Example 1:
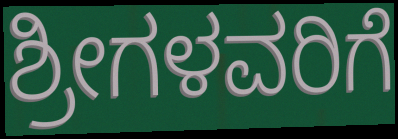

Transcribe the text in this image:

ಶ್ರೀಗಳವರಿಗೆ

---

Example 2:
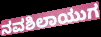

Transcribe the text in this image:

ನವಶಿಲಾಯುಗ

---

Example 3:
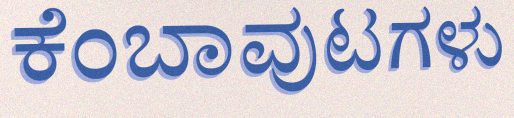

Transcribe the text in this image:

ಕೆಂಬಾವುಟಗಳು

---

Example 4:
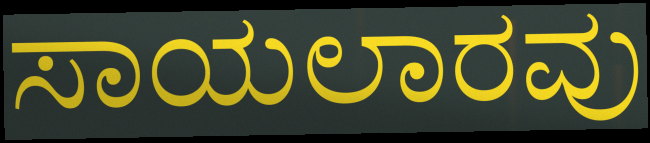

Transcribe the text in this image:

ಸಾಯಲಾರವು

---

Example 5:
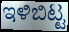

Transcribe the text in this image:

ಇಳಿಬಿಟ್ಟ